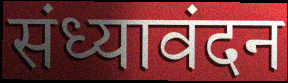
संध्यावंदन